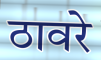
ठावरे